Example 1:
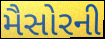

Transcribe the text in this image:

મૈસોરની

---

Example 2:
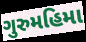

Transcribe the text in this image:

ગુરુમહિમા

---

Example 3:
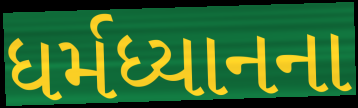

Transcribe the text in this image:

ધર્મધ્યાનના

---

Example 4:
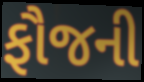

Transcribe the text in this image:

ફૌજની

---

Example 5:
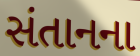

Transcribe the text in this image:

સંતાનના